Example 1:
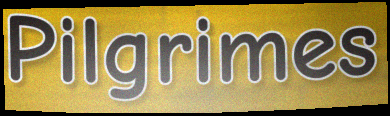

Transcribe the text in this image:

Pilgrimes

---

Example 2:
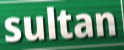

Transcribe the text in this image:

sultan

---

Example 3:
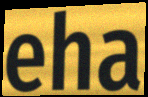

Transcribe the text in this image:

eha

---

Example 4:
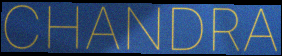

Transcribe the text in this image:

CHANDRA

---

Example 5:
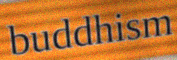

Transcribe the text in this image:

buddhism